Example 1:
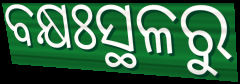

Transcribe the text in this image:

ବକ୍ଷଃସ୍ଥଳରୁ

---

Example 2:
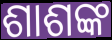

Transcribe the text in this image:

ଶାଶଙ୍କ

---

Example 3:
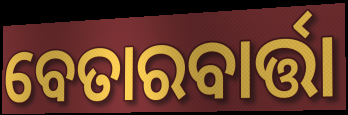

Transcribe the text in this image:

ବେତାରବାର୍ତ୍ତା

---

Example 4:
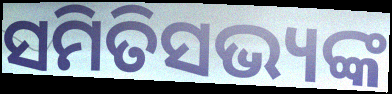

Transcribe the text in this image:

ସମିତିସଭ୍ୟଙ୍କ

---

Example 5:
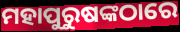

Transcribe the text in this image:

ମହାପୁରୁଷଙ୍କଠାରେ